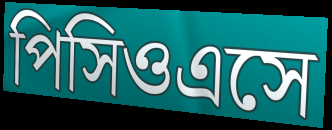
পিসিওএসে